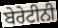
ਬੇਰੇਟੀਨੀ